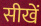
सीखें